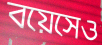
বয়েসেও